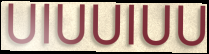
UIUUIUU